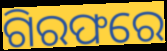
ଗିରଫରେ